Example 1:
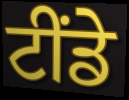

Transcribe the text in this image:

ਟੀਂਡੇ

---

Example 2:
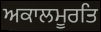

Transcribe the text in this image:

ਅਕਾਲਮੂਰਤਿ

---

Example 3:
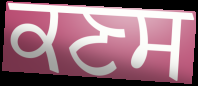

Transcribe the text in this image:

ਕਣਸ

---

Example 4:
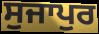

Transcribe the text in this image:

ਸੁਜਾਪੁਰ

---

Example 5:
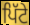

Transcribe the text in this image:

ਪਿੱਟੇ